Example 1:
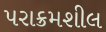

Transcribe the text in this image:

પરાક્રમશીલ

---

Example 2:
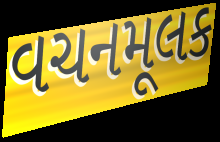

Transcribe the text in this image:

વચનમૂલક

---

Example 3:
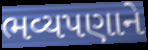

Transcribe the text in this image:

ભવ્યપણાને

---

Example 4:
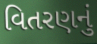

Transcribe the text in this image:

વિતરણનું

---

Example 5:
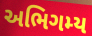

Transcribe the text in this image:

અભિગમ્ય